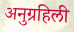
अनुग्रहिली